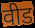
वीड